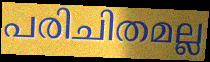
പരിചിതമല്ല